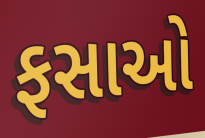
ફસાઓ